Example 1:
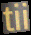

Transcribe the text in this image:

tii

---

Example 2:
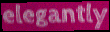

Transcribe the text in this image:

elegantly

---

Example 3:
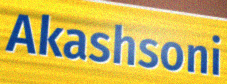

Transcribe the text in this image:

Akashsoni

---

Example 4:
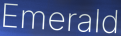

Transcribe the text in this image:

Emerald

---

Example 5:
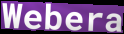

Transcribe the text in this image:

Webera